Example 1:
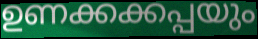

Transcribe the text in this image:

ഉണക്കക്കപ്പയും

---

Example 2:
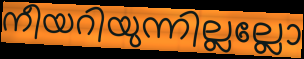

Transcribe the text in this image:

നീയറിയുന്നില്ലല്ലോ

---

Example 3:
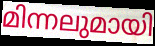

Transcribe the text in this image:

മിന്നലുമായി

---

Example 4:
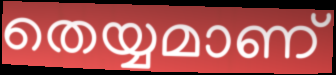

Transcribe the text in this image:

തെയ്യമാണ്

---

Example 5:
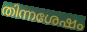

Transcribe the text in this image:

തിന്നശേഷം